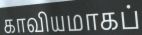
காவியமாகப்